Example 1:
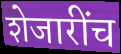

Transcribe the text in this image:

शेजारींच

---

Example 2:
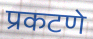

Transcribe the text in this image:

प्रकटणे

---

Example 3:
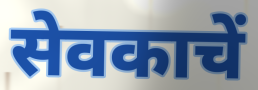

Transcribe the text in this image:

सेवकाचें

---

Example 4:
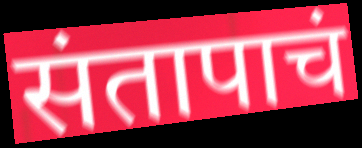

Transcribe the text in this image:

संतापाचं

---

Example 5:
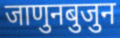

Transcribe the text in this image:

जाणुनबुजुन